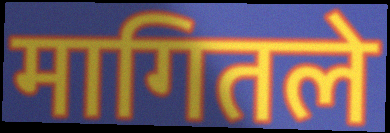
मागितले